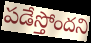
పడేస్తోందని